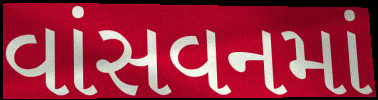
વાંસવનમાં